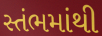
સ્તંભમાંથી